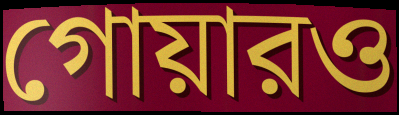
গোয়ারও